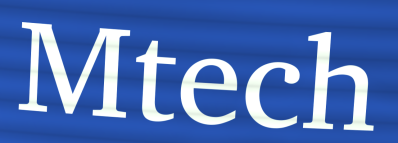
Mtech